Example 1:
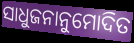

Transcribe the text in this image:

ସାଧୁଜନାନୁମୋଦିତ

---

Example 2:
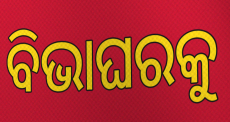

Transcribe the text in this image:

ବିଭାଘରକୁ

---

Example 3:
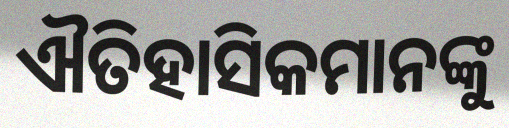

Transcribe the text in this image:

ଐତିହାସିକମାନଙ୍କୁ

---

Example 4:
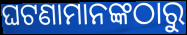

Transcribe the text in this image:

ଘଟଣାମାନଙ୍କଠାରୁ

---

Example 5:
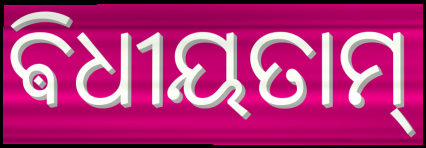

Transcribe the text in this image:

ଵିଧୀୟତାମ୍